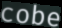
cobe